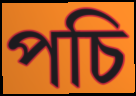
পচি